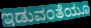
ಇಡುವಂತೆಯೂ